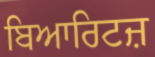
ਬਿਆਰਿਟਜ਼